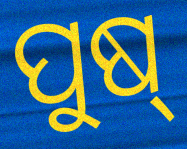
ପୁଷ୍